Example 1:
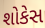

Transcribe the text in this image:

શોકેસ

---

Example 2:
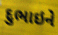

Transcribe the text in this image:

દુભાઇને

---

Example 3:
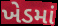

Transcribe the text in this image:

ખેડમાં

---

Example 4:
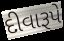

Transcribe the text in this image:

દીવારૂપે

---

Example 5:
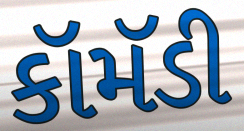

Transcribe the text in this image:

કૉમૅડી